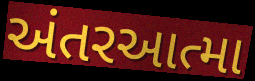
અંતરઆત્મા